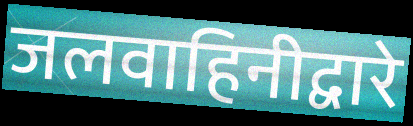
जलवाहिनीद्वारे